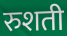
रुशती